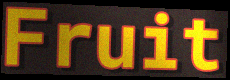
Fruit